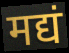
मद्यं